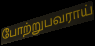
போற்றுபவராய்